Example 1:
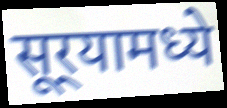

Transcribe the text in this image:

सूर्यामध्ये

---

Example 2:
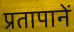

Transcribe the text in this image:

प्रतापानें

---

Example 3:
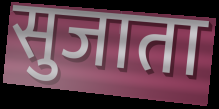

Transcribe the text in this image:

सुजाता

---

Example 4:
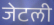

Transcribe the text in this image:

जेटली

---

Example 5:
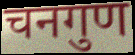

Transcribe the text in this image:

चनगुण